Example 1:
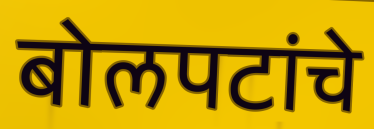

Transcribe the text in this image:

बोलपटांचे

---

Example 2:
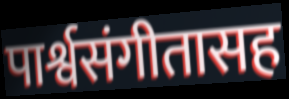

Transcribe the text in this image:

पार्श्वसंगीतासह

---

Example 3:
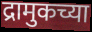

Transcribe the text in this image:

द्रामुकच्या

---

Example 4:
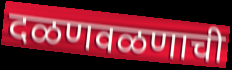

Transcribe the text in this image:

दळणवळणाची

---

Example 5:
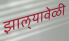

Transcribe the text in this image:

झाल्यावेळी